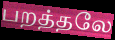
பறத்தலே